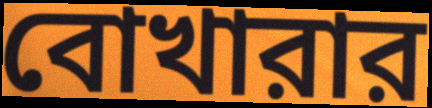
বোখারার